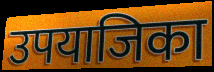
उपयाजिका